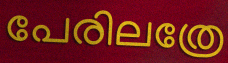
പേരിലത്രേ